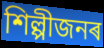
শিল্পীজনৰ